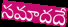
సమాదదే